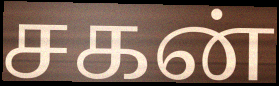
சகன்